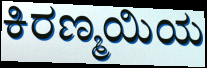
ಕಿರಣ್ಮಯಿಯ